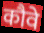
कौवे